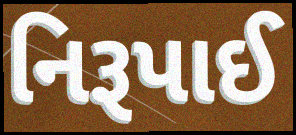
નિરૂપાઈ